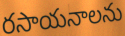
రసాయనాలను